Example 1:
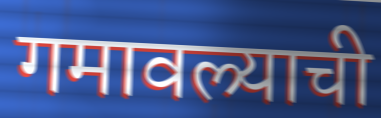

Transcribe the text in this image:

गमावल्याची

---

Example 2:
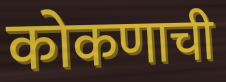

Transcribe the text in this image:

कोकणाची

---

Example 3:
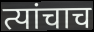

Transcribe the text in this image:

त्यांचाच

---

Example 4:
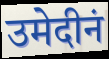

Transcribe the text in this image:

उमेदीनं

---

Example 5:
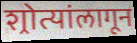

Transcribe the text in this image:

श्रोत्यांलागून